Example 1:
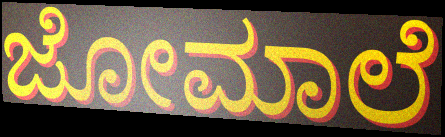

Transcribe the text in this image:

ಜೋಮಾಲೆ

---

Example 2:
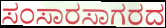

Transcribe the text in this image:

ಸಂಸಾರಸಾಗರದ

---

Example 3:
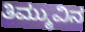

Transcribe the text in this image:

ತಿಮ್ಮುವಿನ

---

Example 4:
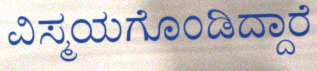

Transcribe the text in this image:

ವಿಸ್ಮಯಗೊಂಡಿದ್ದಾರೆ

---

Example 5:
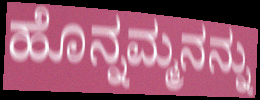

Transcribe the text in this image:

ಹೊನ್ನಮ್ಮನನ್ನು